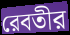
রেবতীর